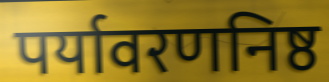
पर्यावरणनिष्ठ